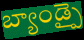
బ్యాండ్పై